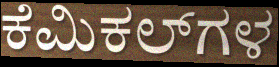
ಕೆಮಿಕಲ್‌ಗಳ